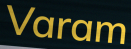
Varam